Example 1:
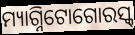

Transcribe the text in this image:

ମ୍ୟାଗ୍ନିଟୋଗୋରସ୍କ୍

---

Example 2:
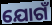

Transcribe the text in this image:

ଯୋଗଁ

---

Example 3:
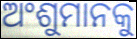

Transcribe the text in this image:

ଅଂଶୁମାନକୁ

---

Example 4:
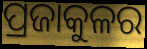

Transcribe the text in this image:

ପ୍ରଜାକୁଳର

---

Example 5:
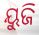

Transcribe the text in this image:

ୟୁଜି